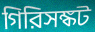
গিরিসঙ্কট